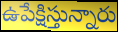
ఉపేక్షిస్తున్నారు